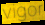
vigor